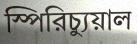
স্পিরিচ্যুয়াল